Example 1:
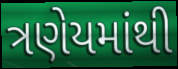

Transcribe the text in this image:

ત્રણેયમાંથી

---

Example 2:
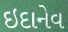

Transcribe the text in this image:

ઇદાનેવ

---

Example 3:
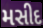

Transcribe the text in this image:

મસીદ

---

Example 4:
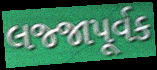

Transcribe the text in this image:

લજ્જાપૂર્વક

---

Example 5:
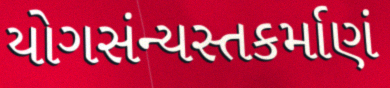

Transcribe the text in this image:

યોગસંન્યસ્તકર્માણં